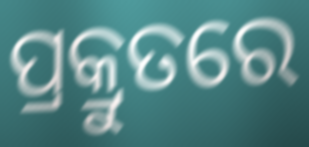
ପ୍ରକ୍ରୁତରେ